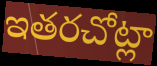
ఇతరచోట్లా